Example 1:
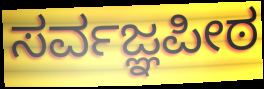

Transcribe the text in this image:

ಸರ್ವಜ್ಞಪೀಠ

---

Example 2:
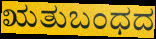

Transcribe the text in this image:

ಋತುಬಂಧದ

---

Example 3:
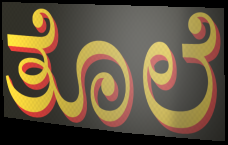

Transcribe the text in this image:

ತೊಲೆ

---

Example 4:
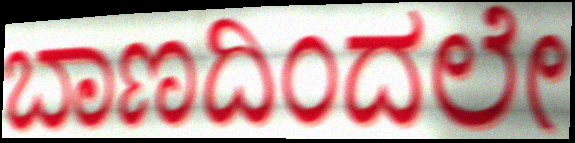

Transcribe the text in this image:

ಬಾಣದಿಂದಲೇ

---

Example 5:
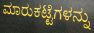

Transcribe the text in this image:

ಮಾರುಕಟ್ಟೆಗಳನ್ನು